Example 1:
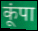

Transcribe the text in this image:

कूंपा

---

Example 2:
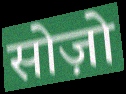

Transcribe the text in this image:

सोज़ो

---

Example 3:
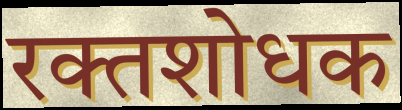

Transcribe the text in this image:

रक्तशोधक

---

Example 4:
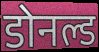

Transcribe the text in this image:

डोनल्‍ड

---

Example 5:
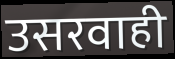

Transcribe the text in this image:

उसरवाही